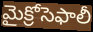
మైక్రోసెఫాలీ